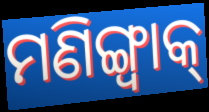
ମଣିଙ୍ଗ୍ୱାକ୍